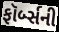
ફૉર્બ્સની